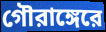
গৌরাঙ্গেরে